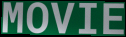
MOVIE